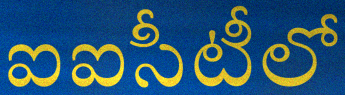
ఐఐసీటీలో